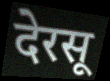
देरसू